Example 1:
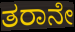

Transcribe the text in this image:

ತರಾನೇ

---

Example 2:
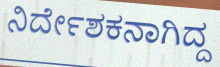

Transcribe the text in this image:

ನಿರ್ದೇಶಕನಾಗಿದ್ದ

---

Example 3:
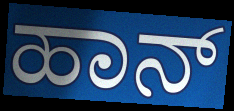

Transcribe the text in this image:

ಹಾನ್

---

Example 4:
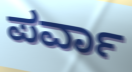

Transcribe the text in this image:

ಪರ್ವಾ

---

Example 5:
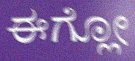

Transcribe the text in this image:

ಈಗ್ಲೋ